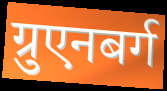
ग्रुएनबर्ग